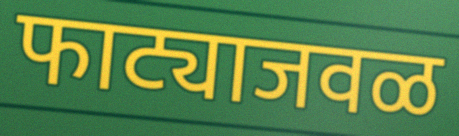
फाट्याजवळ